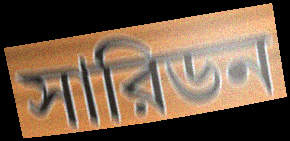
সারিডন